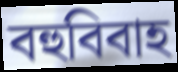
বহুবিবাহ